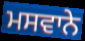
ਮਸਵਾਨੇ